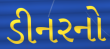
ડીનરનો